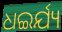
ଧଇର୍ଯ୍ୟ